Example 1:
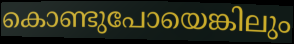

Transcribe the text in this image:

കൊണ്ടുപോയെങ്കിലും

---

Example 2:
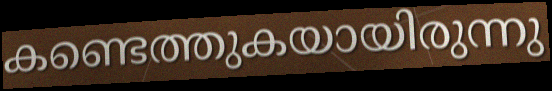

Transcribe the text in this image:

കണ്ടെത്തുകയായിരുന്നു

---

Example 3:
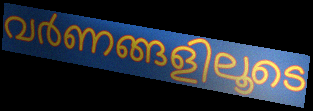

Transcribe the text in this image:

വർണങ്ങളിലൂടെ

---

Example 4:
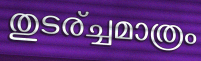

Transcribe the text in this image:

തുടര്ച്ചമാത്രം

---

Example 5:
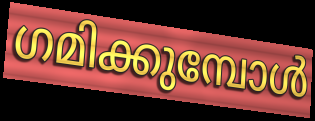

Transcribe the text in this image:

ഗമിക്കുമ്പോൾ